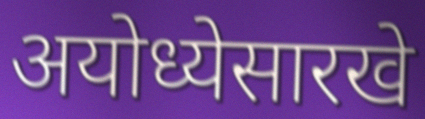
अयोध्येसारखे